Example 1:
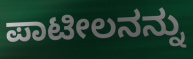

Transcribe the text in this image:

ಪಾಟೀಲನನ್ನು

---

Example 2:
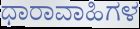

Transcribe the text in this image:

ಧಾರಾವಾಹಿಗಳ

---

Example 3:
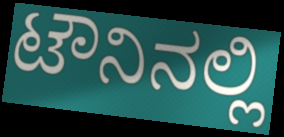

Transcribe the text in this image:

ಟೌನಿನಲ್ಲಿ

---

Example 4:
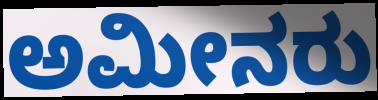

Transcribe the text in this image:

ಅಮೀನರು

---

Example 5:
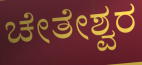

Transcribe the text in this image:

ಚೇತೇಶ್ವರ